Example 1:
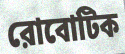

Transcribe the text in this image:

রোবোটিক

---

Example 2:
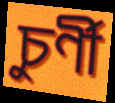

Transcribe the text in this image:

চুর্ণী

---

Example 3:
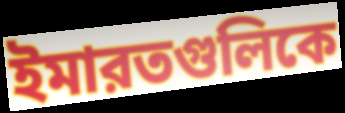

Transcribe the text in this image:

ইমারতগুলিকে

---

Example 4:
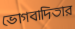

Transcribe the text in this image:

ভোগবাদিতার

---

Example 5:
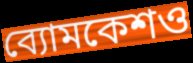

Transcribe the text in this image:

ব্যোমকেশও